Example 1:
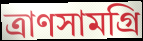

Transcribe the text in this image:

ত্রাণসামগ্রি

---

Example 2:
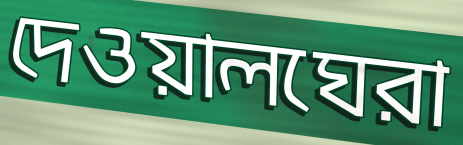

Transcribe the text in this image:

দেওয়ালঘেরা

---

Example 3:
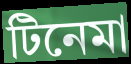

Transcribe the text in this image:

টিনেমা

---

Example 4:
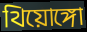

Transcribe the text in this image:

থিয়োঙ্গো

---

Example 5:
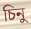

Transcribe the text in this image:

চিনু